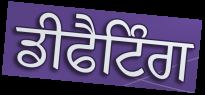
ਡੀਫੈਟਿੰਗ